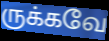
ருக்கவே